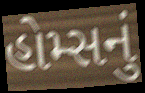
હોમ્સનું